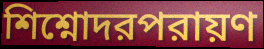
শিশ্নোদরপরায়ণ